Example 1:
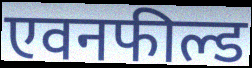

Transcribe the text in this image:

एवनफील्ड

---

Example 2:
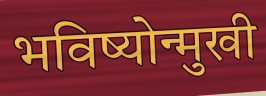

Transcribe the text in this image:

भविष्योन्मुखी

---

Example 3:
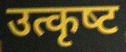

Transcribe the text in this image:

उत्कृष्‍ट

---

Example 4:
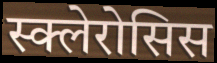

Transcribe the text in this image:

स्क्लेरोसिस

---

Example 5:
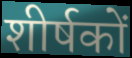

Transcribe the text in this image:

शीर्षकों